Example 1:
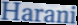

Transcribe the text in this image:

Harani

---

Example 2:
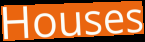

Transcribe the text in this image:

Houses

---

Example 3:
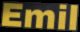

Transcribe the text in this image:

Emil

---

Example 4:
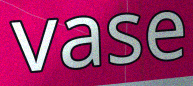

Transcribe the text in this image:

vase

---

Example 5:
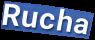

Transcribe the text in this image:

Rucha